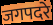
जगपदरे